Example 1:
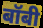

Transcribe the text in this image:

बॉबी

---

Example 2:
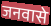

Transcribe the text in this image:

जनवासे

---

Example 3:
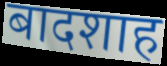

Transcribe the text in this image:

बादशाह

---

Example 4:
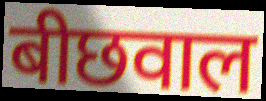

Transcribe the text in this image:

बीछवाल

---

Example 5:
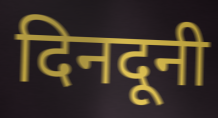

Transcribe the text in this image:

दिनदूनी